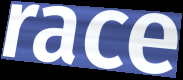
race